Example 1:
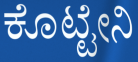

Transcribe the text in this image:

ಕೊಟ್ಟೇನಿ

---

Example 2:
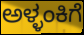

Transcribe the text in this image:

ಅಳ್ಳಂಕಿಗೆ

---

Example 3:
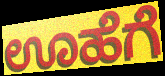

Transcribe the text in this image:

ಊಹೆಗೆ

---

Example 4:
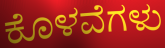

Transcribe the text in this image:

ಕೊಳವೆಗಳು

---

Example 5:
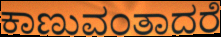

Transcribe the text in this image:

ಕಾಣುವಂತಾದರೆ